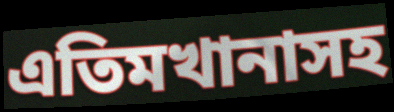
এতিমখানাসহ